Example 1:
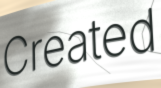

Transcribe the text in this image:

Created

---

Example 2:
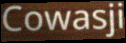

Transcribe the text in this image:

Cowasji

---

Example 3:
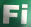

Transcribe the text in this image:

Fi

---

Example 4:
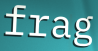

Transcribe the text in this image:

frag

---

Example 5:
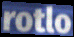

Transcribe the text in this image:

rotlo